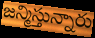
జన్మిస్తున్నారు